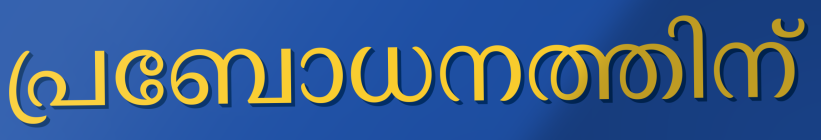
പ്രബോധനത്തിന്